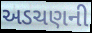
અડચણની